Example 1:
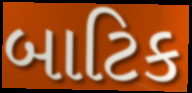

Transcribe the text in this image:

બાટિક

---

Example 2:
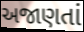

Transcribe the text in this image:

અજાણતાં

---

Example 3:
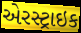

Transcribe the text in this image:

એરસ્ટ્રાઇક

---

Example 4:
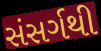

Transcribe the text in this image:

સંસર્ગથી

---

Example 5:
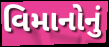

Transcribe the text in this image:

વિમાનોનું